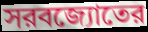
সরবজ্যোতের